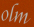
olm